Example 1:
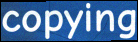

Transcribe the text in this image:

copying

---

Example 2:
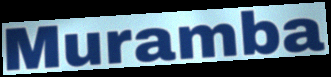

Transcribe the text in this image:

Muramba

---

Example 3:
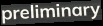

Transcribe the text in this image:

preliminary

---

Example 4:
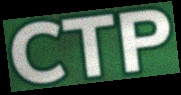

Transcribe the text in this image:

CTP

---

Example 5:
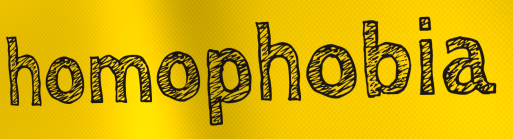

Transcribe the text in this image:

homophobia